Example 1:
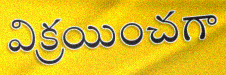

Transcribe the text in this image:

విక్రయించగా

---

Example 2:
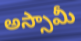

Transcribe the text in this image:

అస్సామీ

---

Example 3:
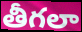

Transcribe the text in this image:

తీగలా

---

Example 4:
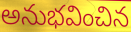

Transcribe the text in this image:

అనుభవించిన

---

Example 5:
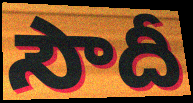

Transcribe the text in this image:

సౌదీ